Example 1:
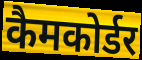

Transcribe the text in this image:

कैमकोर्डर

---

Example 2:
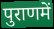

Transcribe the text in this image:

पुराणमें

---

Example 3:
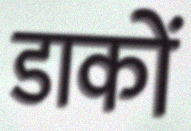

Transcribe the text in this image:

डाकों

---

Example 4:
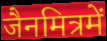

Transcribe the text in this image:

जैनमित्रमें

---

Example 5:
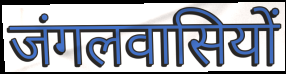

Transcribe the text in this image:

जंगलवासियों